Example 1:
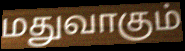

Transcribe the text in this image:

மதுவாகும்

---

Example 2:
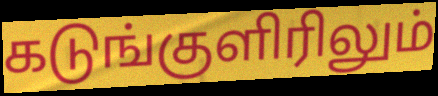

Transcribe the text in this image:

கடுங்குளிரிலும்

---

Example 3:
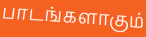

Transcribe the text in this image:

பாடங்களாகும்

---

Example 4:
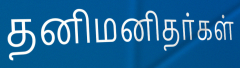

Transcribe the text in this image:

தனிமனிதர்கள்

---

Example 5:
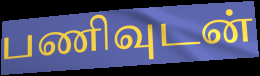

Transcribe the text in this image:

பணிவுடன்